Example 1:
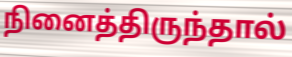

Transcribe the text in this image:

நினைத்திருந்தால்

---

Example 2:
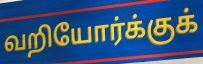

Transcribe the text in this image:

வறியோர்க்குக்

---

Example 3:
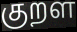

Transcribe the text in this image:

குறள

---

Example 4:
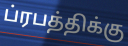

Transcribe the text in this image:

ப்ரபத்திக்கு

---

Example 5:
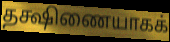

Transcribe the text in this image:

தக்ஷிணையாகக்